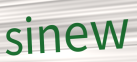
sinew